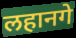
लहानगे